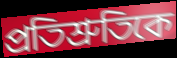
প্রতিশ্রুতিকে